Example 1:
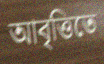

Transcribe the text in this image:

আবৃত্তিতে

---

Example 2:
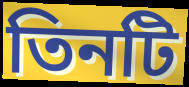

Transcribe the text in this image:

তিনটি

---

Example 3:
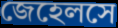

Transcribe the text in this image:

জেহেলসে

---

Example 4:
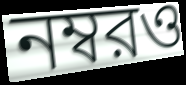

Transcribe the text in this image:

নম্বরও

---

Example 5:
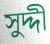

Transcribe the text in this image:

সুদ্দী